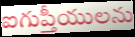
ఐగుప్తీయులను